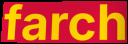
farch